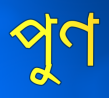
পুণ